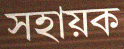
সহায়ক